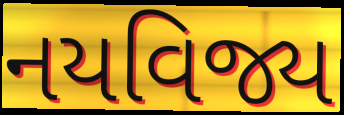
નયવિજ્ય